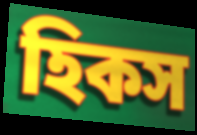
হিকস